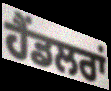
ਹੈਂਡਲਰਾਂ